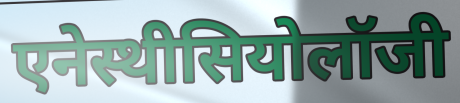
एनेस्थीसियोलॉजी